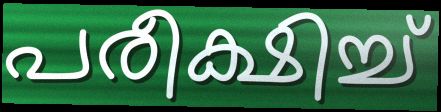
പരീക്ഷിച്ച്